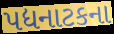
પદ્યનાટકના